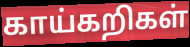
காய்கறிகள்